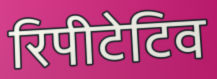
रिपीटेटिव